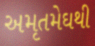
અમૃતમેઘથી